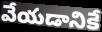
వేయడానికే